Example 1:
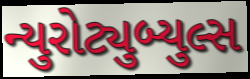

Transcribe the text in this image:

ન્યુરોટ્યુબ્યુલ્સ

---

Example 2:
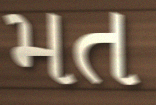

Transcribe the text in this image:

મત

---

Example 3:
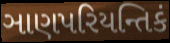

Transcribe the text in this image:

ઞાણપરિયન્તિકં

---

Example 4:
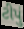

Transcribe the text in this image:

ટીપું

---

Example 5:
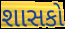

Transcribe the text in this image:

શાસકો